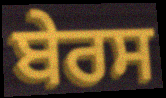
ਬੇਰਸ